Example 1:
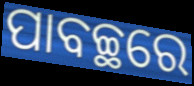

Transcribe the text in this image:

ପାବଚ୍ଛରେ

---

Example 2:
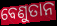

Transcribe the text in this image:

ବେଣୁତାନ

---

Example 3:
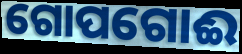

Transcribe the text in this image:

ଗୋପଗୋଈ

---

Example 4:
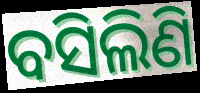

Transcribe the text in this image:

ବସିଲିଣି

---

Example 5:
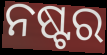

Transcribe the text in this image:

ନଷ୍ଟର